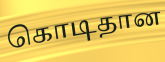
கொடிதான